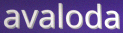
avaloda